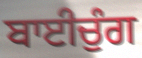
ਬਾਈਚੁੰਗ